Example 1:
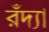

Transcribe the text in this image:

রঁদ্যা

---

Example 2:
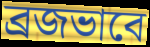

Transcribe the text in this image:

ব্রজভাবে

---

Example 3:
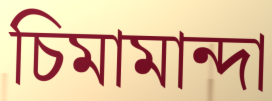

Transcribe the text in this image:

চিমামান্দা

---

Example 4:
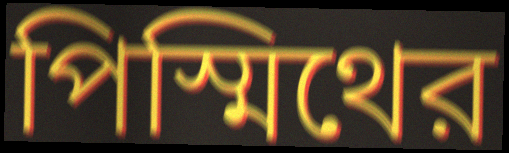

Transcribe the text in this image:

পিস্মিথের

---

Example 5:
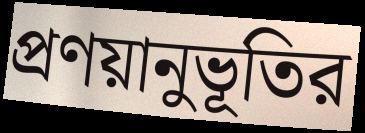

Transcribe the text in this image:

প্রণয়ানুভূতির